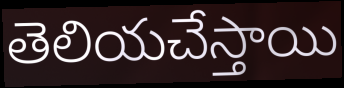
తెలియచేస్తాయి